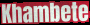
Khambete